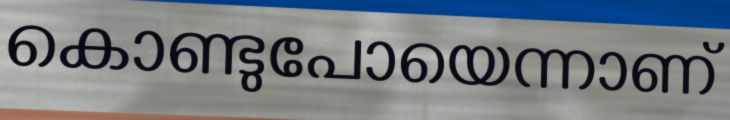
കൊണ്ടുപോയെന്നാണ്